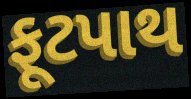
ફૂટપાથ